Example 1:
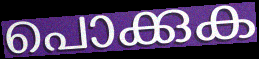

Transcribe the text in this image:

പൊക്കുക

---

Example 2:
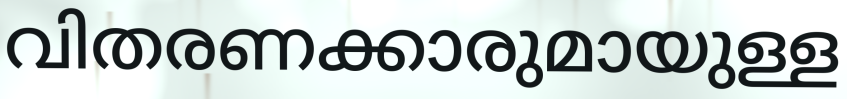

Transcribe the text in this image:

വിതരണക്കാരുമായുള്ള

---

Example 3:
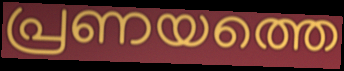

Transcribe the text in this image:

പ്രണയത്തെ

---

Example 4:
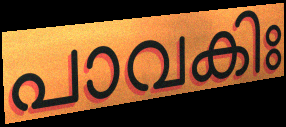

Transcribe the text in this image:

പാവകിഃ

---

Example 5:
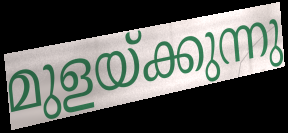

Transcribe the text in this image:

മുളയ്ക്കുന്നു